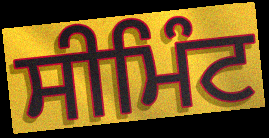
ਸੀਮਿੰਟ